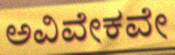
ಅವಿವೇಕವೇ